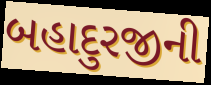
બહાદુરજીની